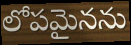
లోపమైనను